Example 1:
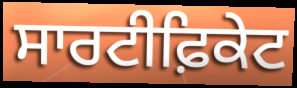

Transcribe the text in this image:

ਸਾਰਟੀਫ਼ਿਕੇਟ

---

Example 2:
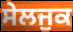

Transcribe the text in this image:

ਸੇਲਜੁਕ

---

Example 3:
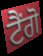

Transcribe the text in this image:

ਟੈਂਗੋ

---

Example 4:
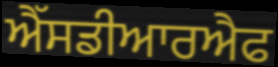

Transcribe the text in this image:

ਐੱਸਡੀਆਰਐਫ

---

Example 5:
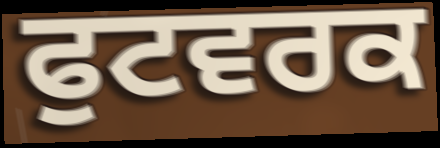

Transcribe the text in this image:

ਫੁਟਵਰਕ